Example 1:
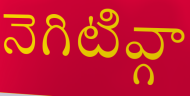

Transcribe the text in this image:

నెగిటివ్గా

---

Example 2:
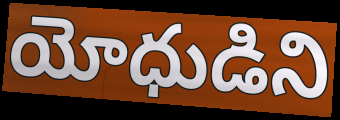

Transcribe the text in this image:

యోధుడిని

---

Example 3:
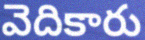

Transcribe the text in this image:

వెదికారు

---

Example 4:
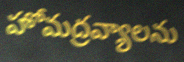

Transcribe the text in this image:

హోమద్రవ్యాలను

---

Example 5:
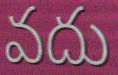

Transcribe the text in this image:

వదు